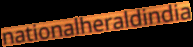
nationalheraldindia